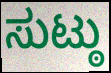
ಸುಟ್ಠು